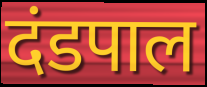
दंडपाल